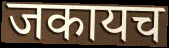
जकायच